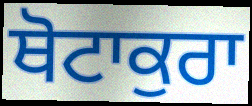
ਥੋਟਾਕੁਰਾ